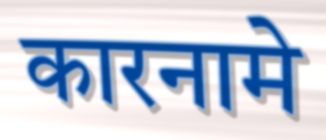
कारनामे